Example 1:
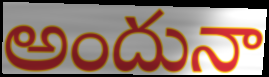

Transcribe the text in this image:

అందునా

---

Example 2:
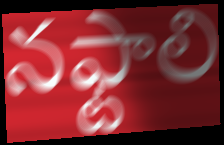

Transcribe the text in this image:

నఫ్టాలి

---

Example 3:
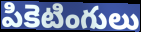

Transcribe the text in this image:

పికెటింగులు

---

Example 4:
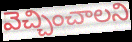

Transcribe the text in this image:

వెచ్చించాలని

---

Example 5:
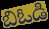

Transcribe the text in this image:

బిఓడి